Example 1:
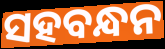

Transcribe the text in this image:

ସହବନ୍ଧନ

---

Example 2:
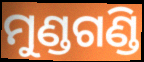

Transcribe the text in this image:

ମୁଣ୍ଡଗଣ୍ଡି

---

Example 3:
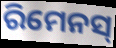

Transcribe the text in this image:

ରିମେନସ୍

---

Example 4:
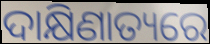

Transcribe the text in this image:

ଦାକ୍ଷିଣାତ୍ୟରେ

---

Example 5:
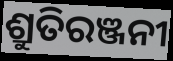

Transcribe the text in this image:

ଶ୍ରୁତିରଞ୍ଜନୀ